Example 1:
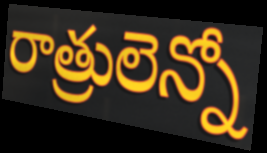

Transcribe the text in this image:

రాత్రులెన్నో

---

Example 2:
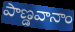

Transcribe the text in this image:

పాణ్డవానాం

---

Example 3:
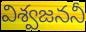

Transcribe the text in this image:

విశ్వజననీ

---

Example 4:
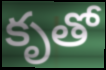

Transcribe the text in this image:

కృతో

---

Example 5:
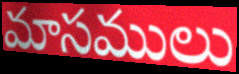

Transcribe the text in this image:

మాసములు